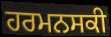
ਹਰਮਨਸਕੀ